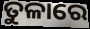
ତୁଳାରେ